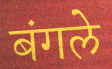
बंगले